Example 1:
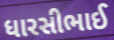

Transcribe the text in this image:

ધારસીભાઈ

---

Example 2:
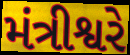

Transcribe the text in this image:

મંત્રીશ્વરે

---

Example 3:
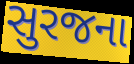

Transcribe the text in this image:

સુરજના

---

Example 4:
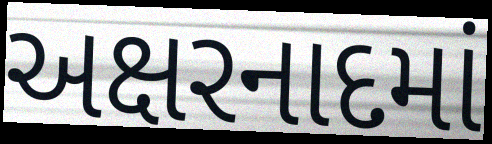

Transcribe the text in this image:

અક્ષરનાદમાં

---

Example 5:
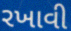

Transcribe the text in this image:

રખાવી